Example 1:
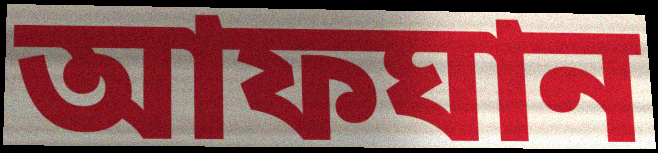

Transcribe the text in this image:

আফঘান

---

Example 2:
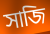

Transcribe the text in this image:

সাজি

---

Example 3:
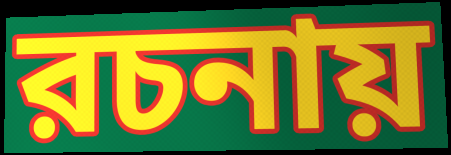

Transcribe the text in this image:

রচনায়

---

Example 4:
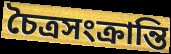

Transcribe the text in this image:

চৈত্রসংক্রান্তি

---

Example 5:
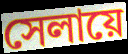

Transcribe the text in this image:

সেলায়ে